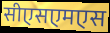
सीएसएमएस